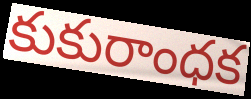
కుకురాంధక